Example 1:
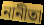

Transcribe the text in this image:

নানীতা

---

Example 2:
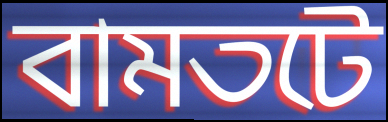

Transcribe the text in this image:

বামতটে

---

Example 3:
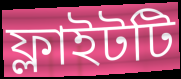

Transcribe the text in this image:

ফ্লাইটটি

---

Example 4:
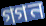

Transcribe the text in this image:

গগন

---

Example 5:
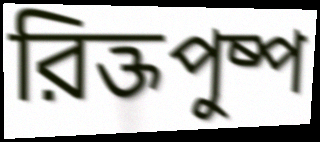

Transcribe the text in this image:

রিক্তপুষ্প